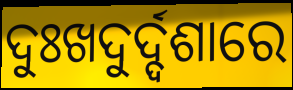
ଦୁଃଖଦୁର୍ଦ୍ଦଶାରେ